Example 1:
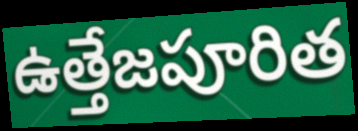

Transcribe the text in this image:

ఉత్తేజపూరిత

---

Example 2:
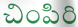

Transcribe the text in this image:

చింపిరి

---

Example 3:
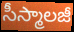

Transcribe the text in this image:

సీస్మాలజీ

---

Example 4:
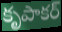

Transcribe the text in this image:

కృపాకర్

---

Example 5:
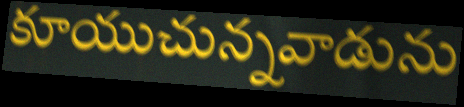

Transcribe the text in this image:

కూయుచున్నవాడును